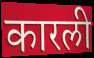
कारली